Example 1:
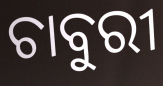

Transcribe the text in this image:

ଚାବୁରୀ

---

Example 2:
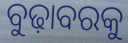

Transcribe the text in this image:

ବୁଢ଼ାବରକୁ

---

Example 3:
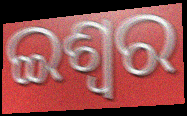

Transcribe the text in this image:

ଇଶ୍ବର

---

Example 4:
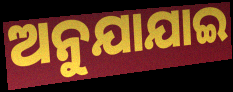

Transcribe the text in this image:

ଅନୁଯାଯାଇ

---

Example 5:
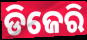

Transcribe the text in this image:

ଡିଜେରି